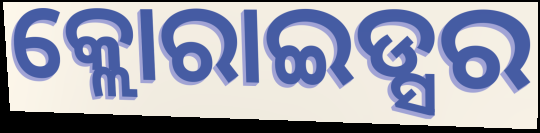
କ୍ଲୋରାଇଡ୍ସର